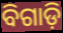
ବିଗାଡ଼ି